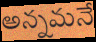
అన్నమనే